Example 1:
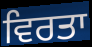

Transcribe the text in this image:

ਵਿਰਤਾ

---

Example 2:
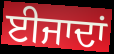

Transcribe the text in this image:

ਈਜਾਦਾਂ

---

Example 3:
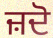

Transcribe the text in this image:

ਜ਼ਦੋ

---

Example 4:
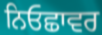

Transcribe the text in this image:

ਨਿਓਛਾਵਰ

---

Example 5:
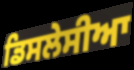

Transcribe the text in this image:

ਡਿਸਲੇਸੀਆ